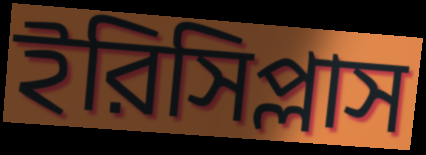
ইরিসিপ্লাস